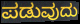
ಪಡುವುದು